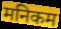
मनिकम